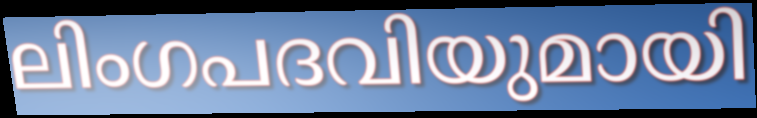
ലിംഗപദവിയുമായി